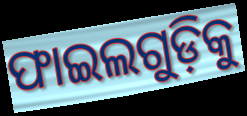
ଫାଇଲଗୁଡ଼ିକୁ